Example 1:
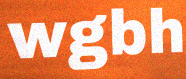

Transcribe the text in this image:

wgbh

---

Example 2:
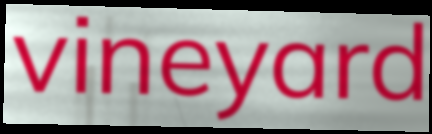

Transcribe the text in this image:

vineyard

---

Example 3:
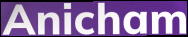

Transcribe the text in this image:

Anicham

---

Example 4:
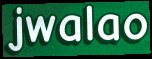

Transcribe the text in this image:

jwalao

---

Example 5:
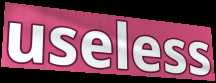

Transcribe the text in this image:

useless